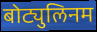
बोट्युलिनम